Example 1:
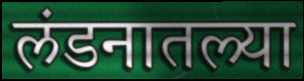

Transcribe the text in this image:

लंडनातल्या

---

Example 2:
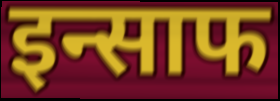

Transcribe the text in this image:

इन्साफ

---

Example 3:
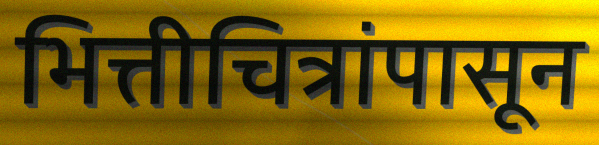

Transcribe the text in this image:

भित्तीचित्रांपासून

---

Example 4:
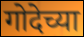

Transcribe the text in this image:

गोदेच्या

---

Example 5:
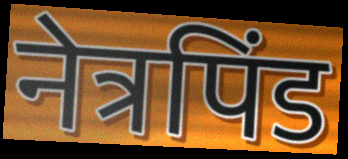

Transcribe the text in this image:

नेत्रपिंड